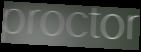
proctor